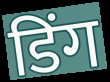
डिंग